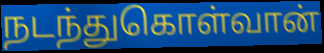
நடந்துகொள்வான்